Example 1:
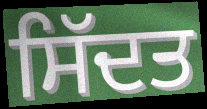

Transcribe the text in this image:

ਸਿੱਦਤ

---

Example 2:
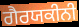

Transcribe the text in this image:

ਗੈਰਯਕੀਨੀ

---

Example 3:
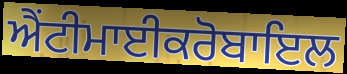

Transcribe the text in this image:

ਐਂਟੀਮਾਈਕਰੋਬਾਇਲ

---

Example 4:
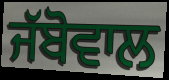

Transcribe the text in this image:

ਜੱਬੋਵਾਲ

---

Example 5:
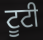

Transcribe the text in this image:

ਟੂਟੀ